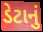
ડેટાનું